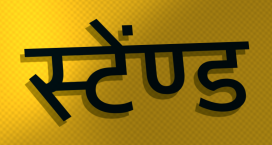
स्टेंण्ड